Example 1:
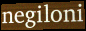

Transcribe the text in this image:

negiloni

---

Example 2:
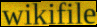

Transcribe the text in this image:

wikifile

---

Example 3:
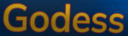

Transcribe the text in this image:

Godess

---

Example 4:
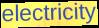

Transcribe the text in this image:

electricity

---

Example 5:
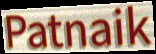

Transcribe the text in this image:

Patnaik